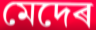
মেদেৰ